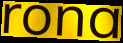
rona